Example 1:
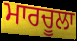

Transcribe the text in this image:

ਮਾਰਚੂਲਾ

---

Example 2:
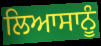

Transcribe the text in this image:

ਲਿਆਸਾਨੂੰ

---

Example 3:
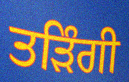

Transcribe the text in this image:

ਤੜਿੰਗੀ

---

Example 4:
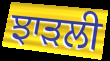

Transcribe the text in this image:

ਝਾੜਲੀ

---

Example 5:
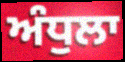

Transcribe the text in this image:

ਅੰਧੁਲਾ